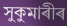
সুকুমাৰীৰ